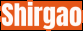
Shirgao